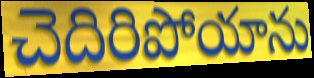
చెదిరిపోయాను